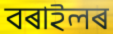
বৰাইলৰ